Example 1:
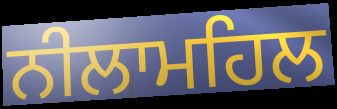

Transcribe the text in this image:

ਨੀਲਾਮਹਿਲ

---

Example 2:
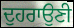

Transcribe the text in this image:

ਦੁਹਰਾਉਣੀ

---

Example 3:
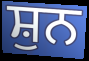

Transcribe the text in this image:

ਸ਼ੁਨ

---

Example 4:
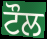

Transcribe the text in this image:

ਟੌਲ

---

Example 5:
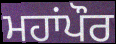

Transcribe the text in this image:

ਮਹਾਂਪੌਰ